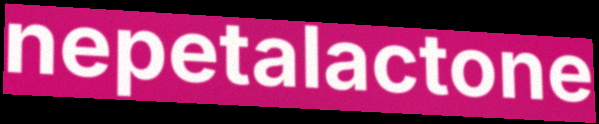
nepetalactone